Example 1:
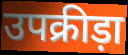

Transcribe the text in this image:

उपक्रीड़ा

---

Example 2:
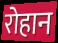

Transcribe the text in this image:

रोहान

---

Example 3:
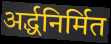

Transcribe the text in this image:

अर्द्धनिर्मित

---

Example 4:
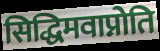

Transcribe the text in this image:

सिद्धिमवाप्नोति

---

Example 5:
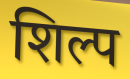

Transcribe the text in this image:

शिल्प